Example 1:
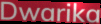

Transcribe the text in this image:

Dwarika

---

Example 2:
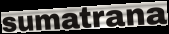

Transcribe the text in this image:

sumatrana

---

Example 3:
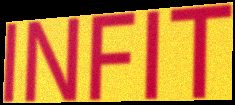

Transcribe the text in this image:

INFIT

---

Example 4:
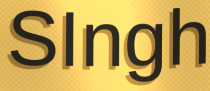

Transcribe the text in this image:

SIngh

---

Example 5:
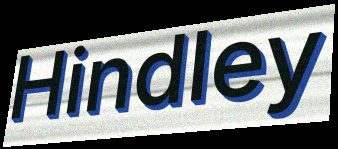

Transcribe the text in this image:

Hindley